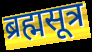
ब्रह्मसूत्र